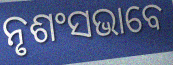
ନୃଶଂସଭାବେ